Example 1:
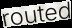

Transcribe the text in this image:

routed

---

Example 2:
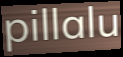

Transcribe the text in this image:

pillalu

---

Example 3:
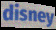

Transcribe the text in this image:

disney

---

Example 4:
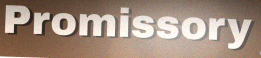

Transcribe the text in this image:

Promissory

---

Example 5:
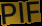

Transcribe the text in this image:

PIF